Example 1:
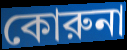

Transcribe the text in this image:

কোরুনা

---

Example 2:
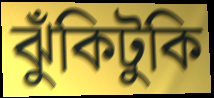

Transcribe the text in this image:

ঝুঁকিটুকি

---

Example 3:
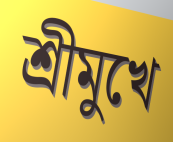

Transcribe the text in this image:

শ্রীমুখে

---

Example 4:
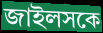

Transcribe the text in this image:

জাইলসকে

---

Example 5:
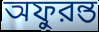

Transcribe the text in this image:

অফুরন্ত